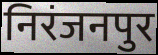
निरंजनपुर